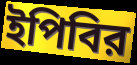
ইপিবির